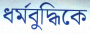
ধর্মবুদ্ধিকে